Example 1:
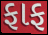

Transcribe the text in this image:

ફાફ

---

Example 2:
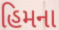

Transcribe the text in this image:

હિમના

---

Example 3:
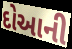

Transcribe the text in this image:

દોઆની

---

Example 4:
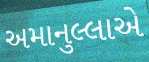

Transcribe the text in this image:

અમાનુલ્લાએ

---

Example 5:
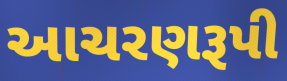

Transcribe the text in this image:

આચરણરૂપી